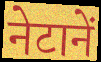
नेटानें